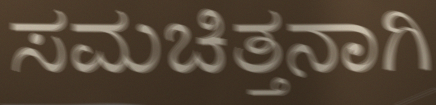
ಸಮಚಿತ್ತನಾಗಿ